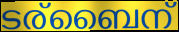
ടര്ബൈന്